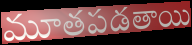
మూతపడతాయి